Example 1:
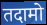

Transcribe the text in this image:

तदामो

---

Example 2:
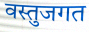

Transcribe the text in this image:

वस्तुजगत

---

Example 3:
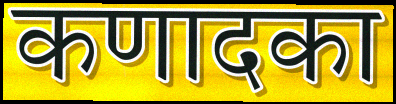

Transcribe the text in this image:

कणादका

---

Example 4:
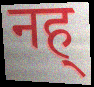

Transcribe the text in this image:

नह्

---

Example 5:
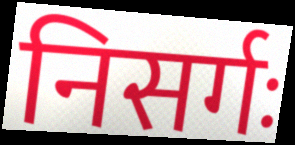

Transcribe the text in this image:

निसर्गः